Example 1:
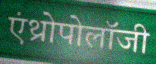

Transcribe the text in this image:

एंथ्रोपोलॉजी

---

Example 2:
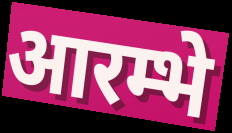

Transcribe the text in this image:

आरम्भे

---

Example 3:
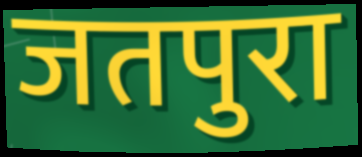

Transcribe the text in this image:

जतपुरा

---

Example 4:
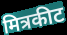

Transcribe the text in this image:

मित्रकीट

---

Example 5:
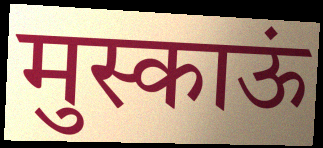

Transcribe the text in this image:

मुस्काऊं